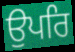
ਉਪਰਿ